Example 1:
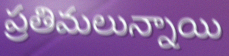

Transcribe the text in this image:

ప్రతిమలున్నాయి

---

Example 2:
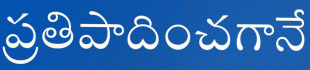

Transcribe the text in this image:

ప్రతిపాదించగానే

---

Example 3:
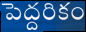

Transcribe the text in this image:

పెద్దరికం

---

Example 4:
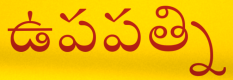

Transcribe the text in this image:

ఉపపత్ని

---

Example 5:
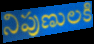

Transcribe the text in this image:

నిపుణులకి